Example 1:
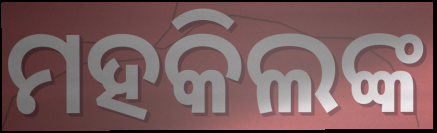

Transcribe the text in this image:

ମହକିଲଙ୍କ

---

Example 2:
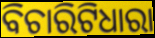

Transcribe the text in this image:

ବିଚାରିଟିଧାରା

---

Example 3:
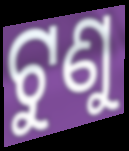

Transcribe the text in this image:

ଟୁଣୁ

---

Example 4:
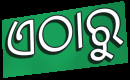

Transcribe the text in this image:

ଏଠାରୁ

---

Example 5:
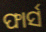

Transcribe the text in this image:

ଫାର୍ସ